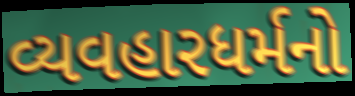
વ્યવહારધર્મનો